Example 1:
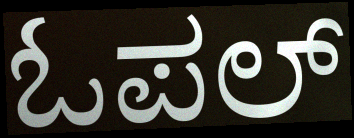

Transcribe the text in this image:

ಓಪಲ್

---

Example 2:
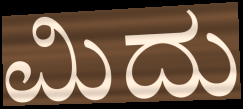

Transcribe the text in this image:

ಮಿದು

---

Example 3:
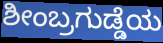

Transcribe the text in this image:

ಶೀಂಬ್ರಗುಡ್ಡೆಯ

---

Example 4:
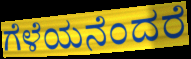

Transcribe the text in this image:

ಗೆಳೆಯನೆಂದರೆ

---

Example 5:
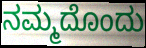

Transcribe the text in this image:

ನಮ್ಮದೊಂದು